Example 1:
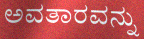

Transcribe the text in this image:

ಅವತಾರವನ್ನು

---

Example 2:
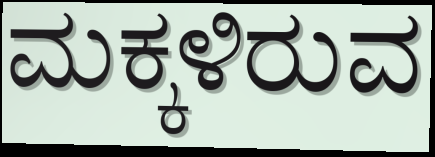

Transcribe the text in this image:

ಮಕ್ಕಳಿರುವ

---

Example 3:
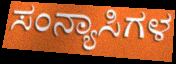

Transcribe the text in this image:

ಸಂನ್ಯಾಸಿಗಳ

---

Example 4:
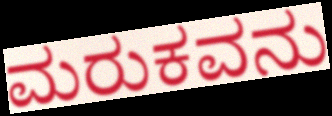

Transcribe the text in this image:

ಮರುಕವನು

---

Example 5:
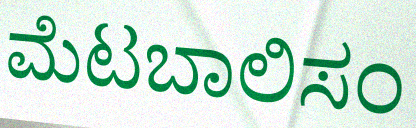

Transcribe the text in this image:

ಮೆಟಬಾಲಿಸಂ